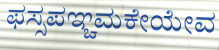
ಫಸ್ಸಪಞ್ಚಮಕೇಯೇವ